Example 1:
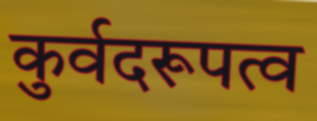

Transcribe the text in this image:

कुर्वदरूपत्व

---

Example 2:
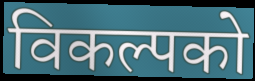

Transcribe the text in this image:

विकल्पको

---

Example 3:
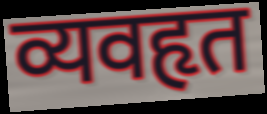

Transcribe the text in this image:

व्यवहृत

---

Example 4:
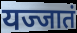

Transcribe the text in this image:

यज्जातं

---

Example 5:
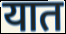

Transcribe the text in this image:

यात